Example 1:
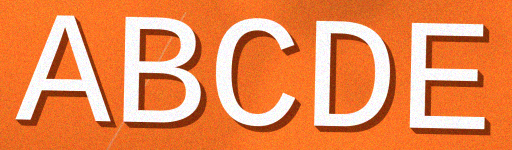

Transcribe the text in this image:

ABCDE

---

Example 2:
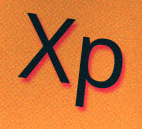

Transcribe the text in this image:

Xp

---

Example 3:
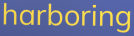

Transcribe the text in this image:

harboring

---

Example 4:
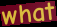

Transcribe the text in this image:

what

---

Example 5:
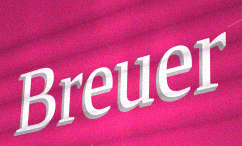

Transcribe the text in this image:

Breuer